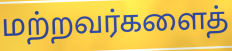
மற்றவர்களைத்